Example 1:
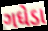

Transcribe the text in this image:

ગધેડા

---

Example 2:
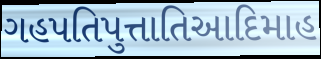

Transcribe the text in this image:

ગહપતિપુત્તાતિઆદિમાહ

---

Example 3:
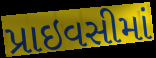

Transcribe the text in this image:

પ્રાઇવસીમાં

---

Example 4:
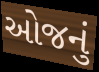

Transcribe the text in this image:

ઓજનું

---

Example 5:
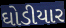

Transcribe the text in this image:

ઘોડીયાર